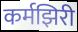
कर्मझिरी